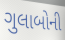
ગુલાબોની